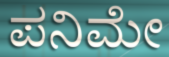
ಪನಿಮೇ